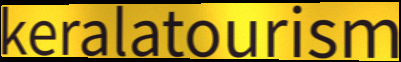
keralatourism